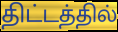
திட்டத்தில்